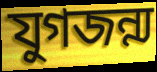
যুগজন্ম